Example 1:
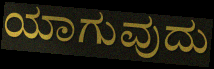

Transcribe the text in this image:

ಯಾಗುವುದು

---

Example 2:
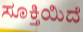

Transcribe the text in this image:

ಸೂಕ್ತಿಯಿದೆ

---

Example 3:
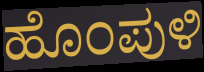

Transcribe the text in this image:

ಹೊಂಪುಳಿ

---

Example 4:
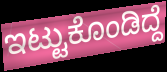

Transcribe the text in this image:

ಇಟ್ಟುಕೊಂಡಿದ್ದೆ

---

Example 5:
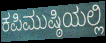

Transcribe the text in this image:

ಕಪಿಮುಷ್ಠಿಯಲ್ಲಿ